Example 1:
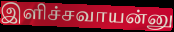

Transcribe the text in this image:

இளிச்சவாயன்னு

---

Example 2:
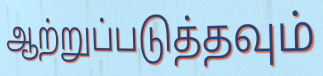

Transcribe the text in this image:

ஆற்றுப்படுத்தவும்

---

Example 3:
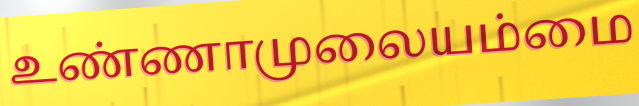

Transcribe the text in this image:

உண்ணாமுலையம்மை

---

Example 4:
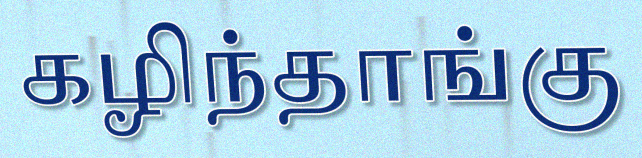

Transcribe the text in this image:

கழிந்தாங்கு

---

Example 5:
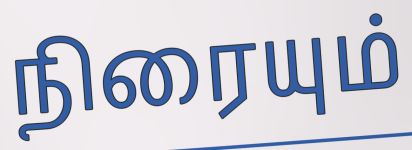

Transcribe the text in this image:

நிரையும்